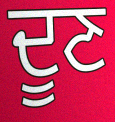
ਦੂਣ